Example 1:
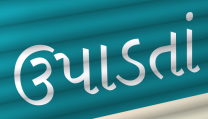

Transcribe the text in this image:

ઉપાડતાં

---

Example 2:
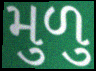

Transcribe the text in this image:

મુળુ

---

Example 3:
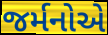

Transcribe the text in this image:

જર્મનોએ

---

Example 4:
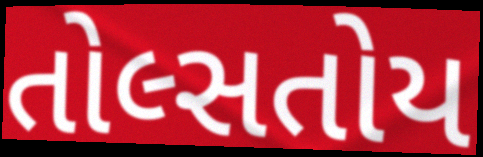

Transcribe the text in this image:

તોલ્સતોય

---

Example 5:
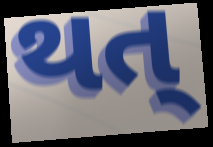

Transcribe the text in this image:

થત્